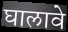
घालावे